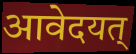
आवेदयत्